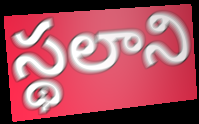
స్థలాని